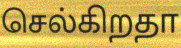
செல்கிறதா